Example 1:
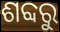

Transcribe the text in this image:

ଶବ୍ଦରୁ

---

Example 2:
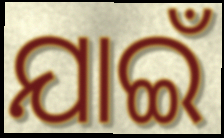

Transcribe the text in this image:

ଯାଇଁ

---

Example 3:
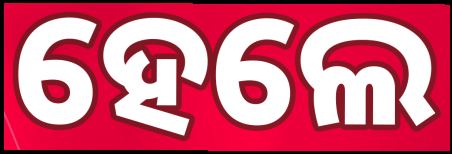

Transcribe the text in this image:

ହେଲେ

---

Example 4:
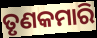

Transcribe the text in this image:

ତୃଣକମାରି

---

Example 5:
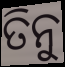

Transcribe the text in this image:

ତିନୁ